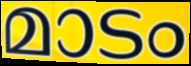
മാടം